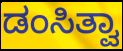
ಡಂಸಿತ್ವಾ